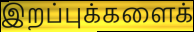
இறப்புக்களைக்